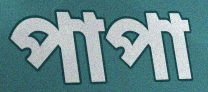
পাপা